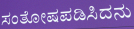
ಸಂತೋಷಪಡಿಸಿದನು